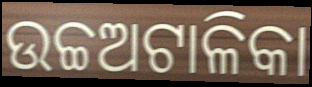
ଉଚ୍ଚଅଟାଳିକା